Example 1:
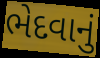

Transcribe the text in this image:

ભેદવાનું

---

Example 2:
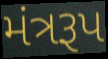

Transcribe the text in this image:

મંત્રરૂપ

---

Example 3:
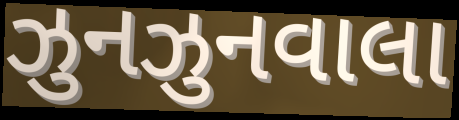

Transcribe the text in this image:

ઝુનઝુનવાલા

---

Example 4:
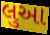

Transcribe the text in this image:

લુઆ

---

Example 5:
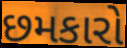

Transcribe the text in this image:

છમકારો